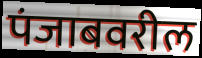
पंजाबवरील